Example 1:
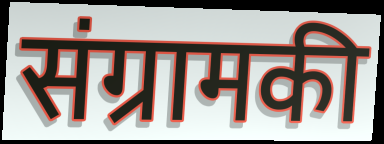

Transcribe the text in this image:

संग्रामकी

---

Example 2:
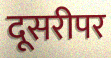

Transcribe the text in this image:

दूसरीपर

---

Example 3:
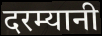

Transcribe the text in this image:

दरम्यानी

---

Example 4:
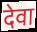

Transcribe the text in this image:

देवा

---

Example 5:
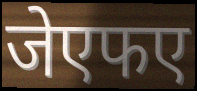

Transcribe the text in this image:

जेएफए